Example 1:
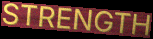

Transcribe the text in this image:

STRENGTH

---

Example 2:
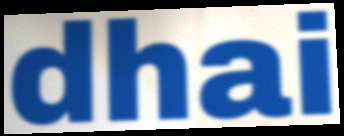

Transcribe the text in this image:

dhai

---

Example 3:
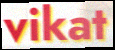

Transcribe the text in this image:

vikat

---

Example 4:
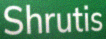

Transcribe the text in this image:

Shrutis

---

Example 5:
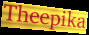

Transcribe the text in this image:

Theepika